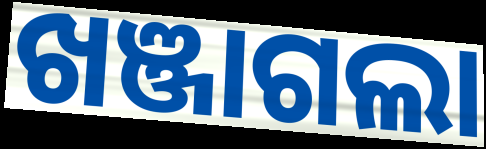
ଖଞ୍ଜାଗଲା